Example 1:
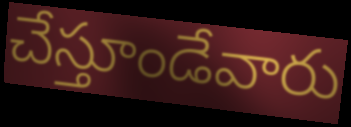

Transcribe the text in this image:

చేస్తూండేవారు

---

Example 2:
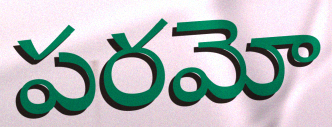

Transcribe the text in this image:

పరమో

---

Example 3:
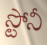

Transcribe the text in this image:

స్టోనీ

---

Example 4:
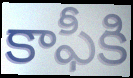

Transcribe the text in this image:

కాఫీకి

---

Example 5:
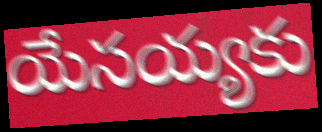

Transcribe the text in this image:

యేసయ్యకు